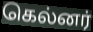
கெல்னர்